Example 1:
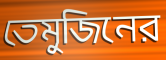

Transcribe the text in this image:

তেমুজিনের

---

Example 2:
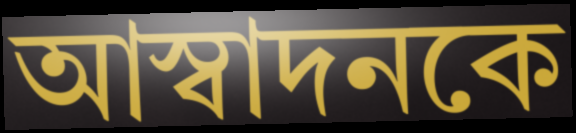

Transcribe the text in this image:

আস্বাদনকে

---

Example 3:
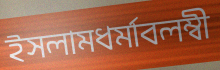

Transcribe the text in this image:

ইসলামধর্মাবলম্বী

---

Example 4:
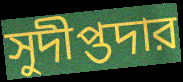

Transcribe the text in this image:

সুদীপ্তদার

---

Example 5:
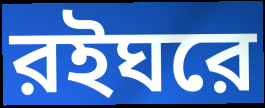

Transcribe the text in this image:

রইঘরে